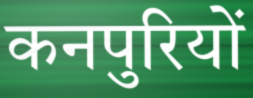
कनपुरियों